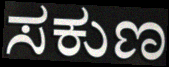
ಸಕುಣ